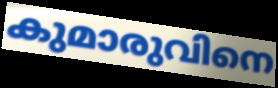
കുമാരുവിനെ